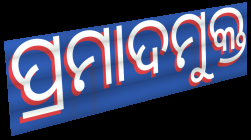
ପ୍ରମାଦମୁକ୍ତ